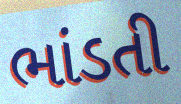
ભાંડતી